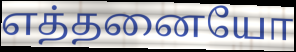
எத்தனையோ